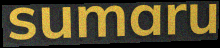
sumaru